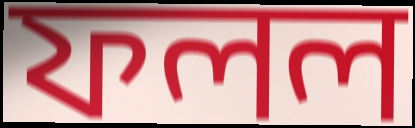
ফলল